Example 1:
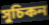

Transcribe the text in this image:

সুচিকন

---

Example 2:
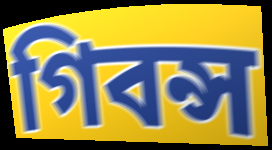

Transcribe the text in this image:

গিবন্স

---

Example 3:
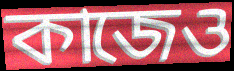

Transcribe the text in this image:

কাজেও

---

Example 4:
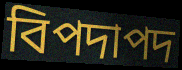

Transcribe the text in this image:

বিপদাপদ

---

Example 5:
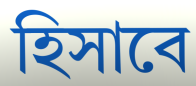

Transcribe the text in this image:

হিসাবে